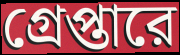
গ্রেপ্তারে